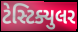
ટેસ્ટિક્યુલર